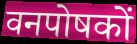
वनपोषकों